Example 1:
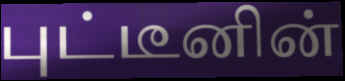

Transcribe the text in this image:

புட்டீனின்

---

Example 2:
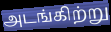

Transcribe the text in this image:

அடங்கிற்று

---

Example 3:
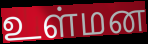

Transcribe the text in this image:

உள்மன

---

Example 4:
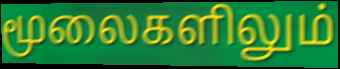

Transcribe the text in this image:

மூலைகளிலும்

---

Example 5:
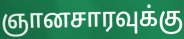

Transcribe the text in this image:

ஞானசாரவுக்கு